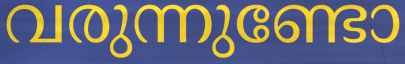
വരുന്നുണ്ടോ